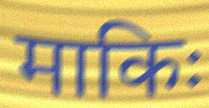
माकिः